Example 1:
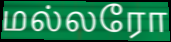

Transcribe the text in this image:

மல்லரோ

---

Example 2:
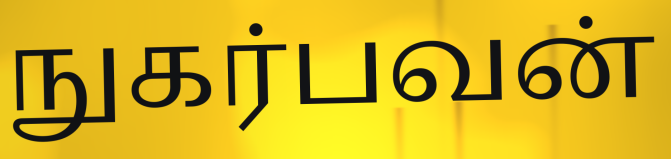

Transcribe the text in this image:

நுகர்பவன்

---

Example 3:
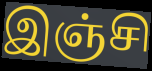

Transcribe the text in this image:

இஞ்சி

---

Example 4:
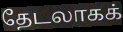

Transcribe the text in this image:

தேடலாகக்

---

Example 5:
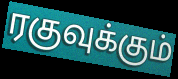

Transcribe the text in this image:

ரகுவுக்கும்